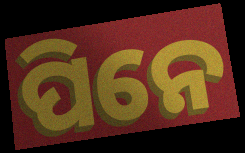
ପିନେ